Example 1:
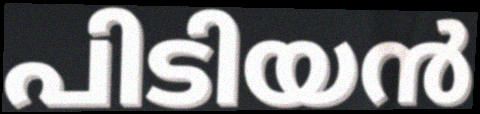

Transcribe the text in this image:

പിടിയൻ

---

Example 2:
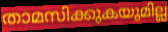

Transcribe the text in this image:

താമസിക്കുകയുമില്ല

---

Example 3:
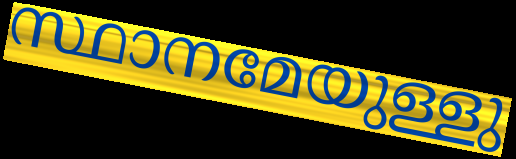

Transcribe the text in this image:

സ്ഥാനമേയുള്ളു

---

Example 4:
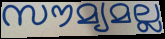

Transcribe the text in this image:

സൗമ്യമല്ല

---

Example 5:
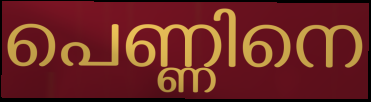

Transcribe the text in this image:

പെണ്ണിനെ